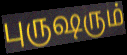
புருஷரும்